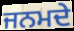
ਜਨਮਦੇ